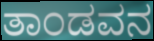
ತಾಂಡವನ